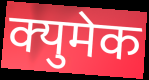
क्युमेक